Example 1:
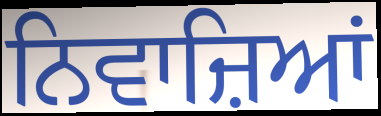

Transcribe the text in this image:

ਨਿਵਾਜ਼ਿਆਂ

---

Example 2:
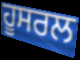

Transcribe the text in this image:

ਹੂਸਰਲ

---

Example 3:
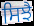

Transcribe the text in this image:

ਸਿਝੈ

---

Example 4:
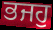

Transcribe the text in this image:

ਭਜਹੁ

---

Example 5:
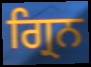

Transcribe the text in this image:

ਗ੍ਰਿਨ